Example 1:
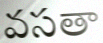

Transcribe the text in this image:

వసతా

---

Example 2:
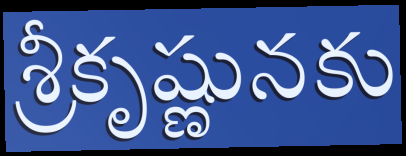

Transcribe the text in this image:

శ్రీకృష్ణునకు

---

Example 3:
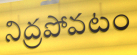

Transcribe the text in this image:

నిద్రపోవటం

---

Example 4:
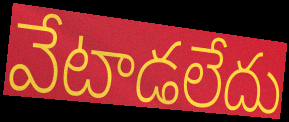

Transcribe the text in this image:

వేటాడలేదు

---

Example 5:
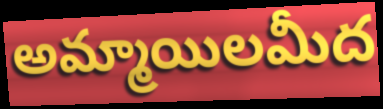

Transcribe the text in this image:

అమ్మాయిలమీద